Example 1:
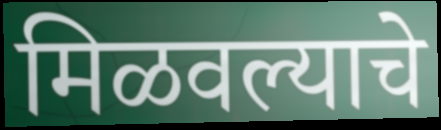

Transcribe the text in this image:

मिळवल्याचे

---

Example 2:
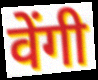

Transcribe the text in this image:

वेंगी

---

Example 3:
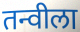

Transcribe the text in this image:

तन्वीला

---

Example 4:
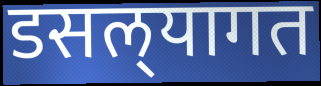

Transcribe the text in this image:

डसल्यागत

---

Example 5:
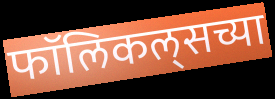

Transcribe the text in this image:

फॉलिकल्सच्या